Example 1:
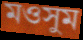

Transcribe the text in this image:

মওসুম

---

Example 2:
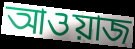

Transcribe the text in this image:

আওয়াজ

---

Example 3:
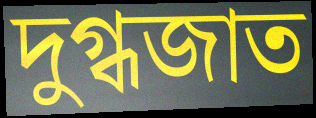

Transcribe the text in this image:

দুগ্ধজাত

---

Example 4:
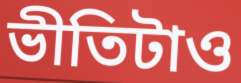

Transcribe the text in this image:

ভীতিটাও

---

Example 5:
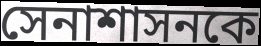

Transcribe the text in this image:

সেনাশাসনকে